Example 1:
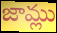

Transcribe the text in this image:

జామ్లు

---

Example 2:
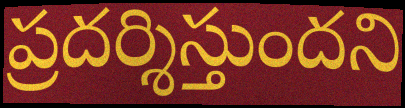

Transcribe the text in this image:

ప్రదర్శిస్తుందని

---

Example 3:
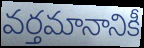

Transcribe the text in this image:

వర్తమానానికీ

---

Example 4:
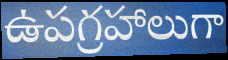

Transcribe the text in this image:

ఉపగ్రహాలుగా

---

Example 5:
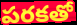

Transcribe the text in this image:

పరకతో